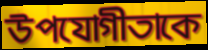
উপযোগীতাকে